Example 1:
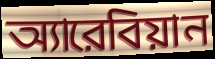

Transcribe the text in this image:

অ্যারেবিয়ান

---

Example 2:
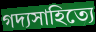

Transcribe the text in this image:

গদ্যসাহিত্যে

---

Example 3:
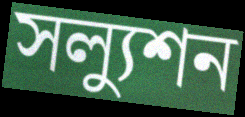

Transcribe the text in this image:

সল্যুশন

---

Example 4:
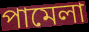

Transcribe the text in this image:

পামেলা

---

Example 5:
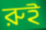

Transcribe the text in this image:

রুই